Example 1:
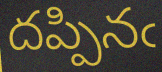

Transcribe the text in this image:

దప్పినఁ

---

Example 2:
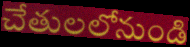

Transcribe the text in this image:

చేతులలోనుండి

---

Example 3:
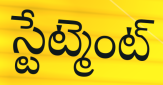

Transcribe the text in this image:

స్టేట్మెంట్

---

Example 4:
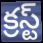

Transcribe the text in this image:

క్రస్ట్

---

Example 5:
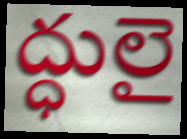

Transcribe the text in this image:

ద్ధులై